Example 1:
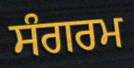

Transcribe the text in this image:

ਸੰਗਰਮ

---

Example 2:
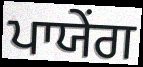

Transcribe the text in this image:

ਪਾਯੇਂਗ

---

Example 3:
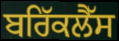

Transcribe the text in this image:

ਬਰਿੱਕਲੈੱਸ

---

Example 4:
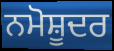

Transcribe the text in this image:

ਨਮੋਸ਼ੂਦਰ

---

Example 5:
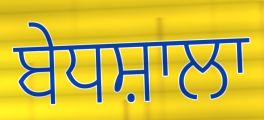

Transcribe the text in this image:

ਬੇਧਸ਼ਾਲਾ